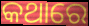
କଥାରେ